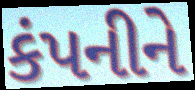
કંપનીને